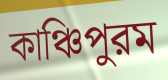
কাঞ্চিপুরম